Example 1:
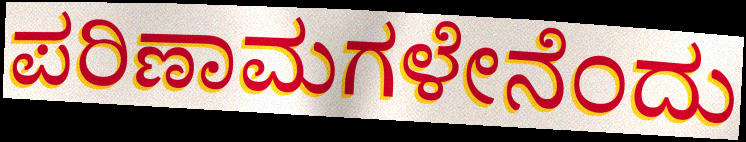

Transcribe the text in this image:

ಪರಿಣಾಮಗಳೇನೆಂದು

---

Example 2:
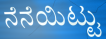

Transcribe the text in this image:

ನೆನೆಯಿಟ್ಟು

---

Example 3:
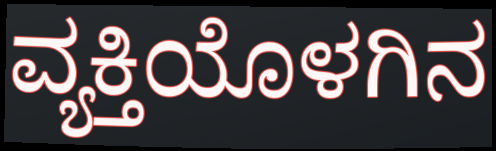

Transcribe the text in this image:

ವ್ಯಕ್ತಿಯೊಳಗಿನ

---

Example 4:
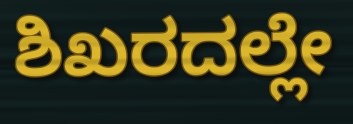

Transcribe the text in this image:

ಶಿಖರದಲ್ಲೇ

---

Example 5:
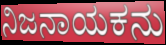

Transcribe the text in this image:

ನಿಜನಾಯಕನು